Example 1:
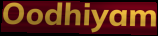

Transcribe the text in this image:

Oodhiyam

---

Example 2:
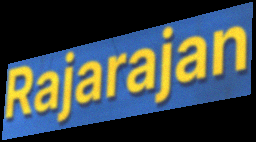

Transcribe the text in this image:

Rajarajan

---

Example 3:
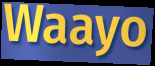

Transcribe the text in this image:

Waayo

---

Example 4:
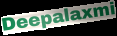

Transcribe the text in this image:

Deepalaxmi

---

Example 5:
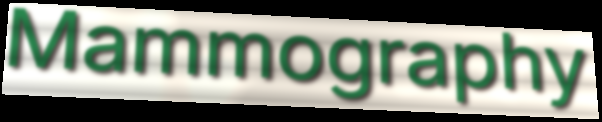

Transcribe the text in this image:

Mammography